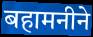
बहामनीने